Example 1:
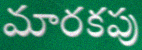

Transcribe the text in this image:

మారకపు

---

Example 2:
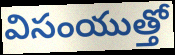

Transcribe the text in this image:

విసంయుత్తో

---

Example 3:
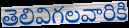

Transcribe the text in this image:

తెలివిగలవారికి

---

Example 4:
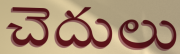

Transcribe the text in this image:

చెదులు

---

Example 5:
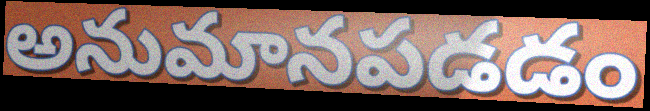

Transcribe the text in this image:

అనుమానపడడం